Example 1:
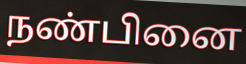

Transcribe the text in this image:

நண்பினை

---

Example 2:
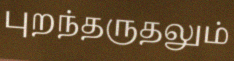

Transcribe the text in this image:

புறந்தருதலும்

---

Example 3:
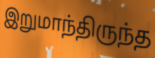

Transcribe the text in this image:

இறுமாந்திருந்த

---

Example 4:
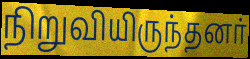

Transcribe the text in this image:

நிறுவியிருந்தனர்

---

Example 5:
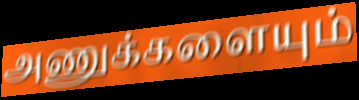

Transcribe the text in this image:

அணுக்களையும்